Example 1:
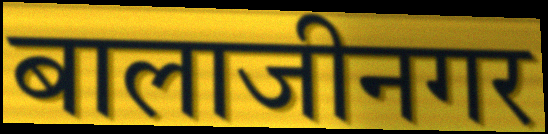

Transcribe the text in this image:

बालाजीनगर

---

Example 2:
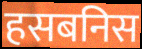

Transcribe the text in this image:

हसबनिस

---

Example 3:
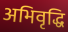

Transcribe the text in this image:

अभिवृद्धि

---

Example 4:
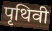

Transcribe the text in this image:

पृथिवी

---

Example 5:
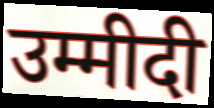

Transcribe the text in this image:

उम्मीदी